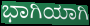
ಭಾಗಿಯಾಗಿ